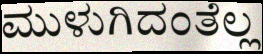
ಮುಳುಗಿದಂತೆಲ್ಲ